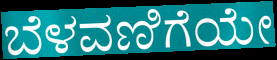
ಬೆಳವಣಿಗೆಯೇ